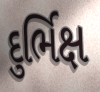
દુર્ભિક્ષ